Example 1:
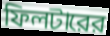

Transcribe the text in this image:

ফিলটারের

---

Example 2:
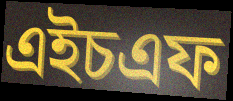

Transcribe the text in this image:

এইচএফ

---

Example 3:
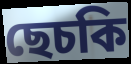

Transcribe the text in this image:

ছেচকি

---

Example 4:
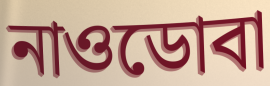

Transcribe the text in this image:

নাওডোবা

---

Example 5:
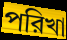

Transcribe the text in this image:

পরিখা